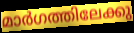
മാർഗത്തിലേക്കു